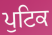
ਪੁਟਿਕ